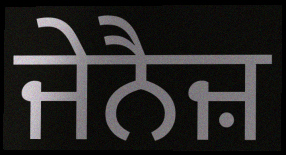
ਜੇਨੈਜ਼